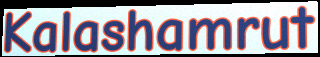
Kalashamrut